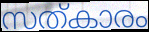
സത്കാരം